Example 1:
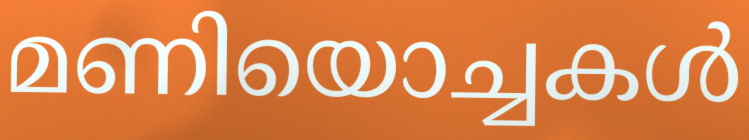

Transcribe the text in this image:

മണിയൊച്ചകൾ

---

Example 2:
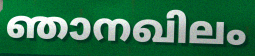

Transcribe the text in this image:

ഞാനഖിലം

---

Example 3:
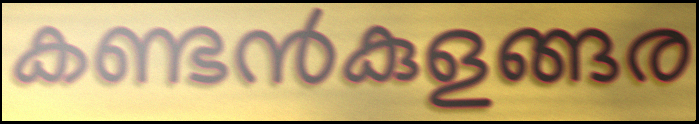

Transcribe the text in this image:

കണ്ടൻകുളങ്ങര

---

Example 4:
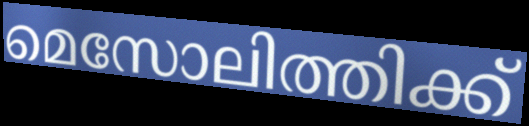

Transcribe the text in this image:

മെസോലിത്തിക്ക്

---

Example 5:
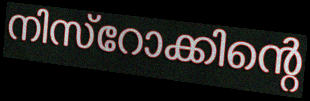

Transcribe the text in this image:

നിസ്റോക്കിന്റെ